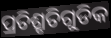
ପ୍ରତିଶ୍ରୃତିଗୁଡିକ